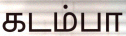
கடம்பா